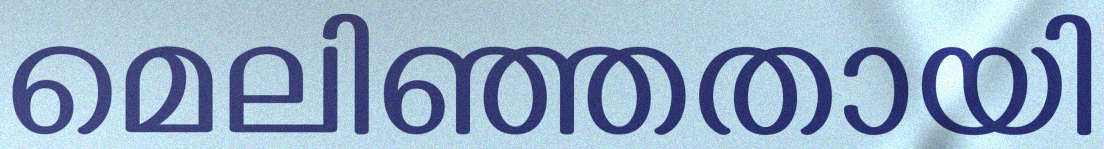
മെലിഞ്ഞതായി